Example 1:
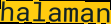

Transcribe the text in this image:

halaman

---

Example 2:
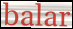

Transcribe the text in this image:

balar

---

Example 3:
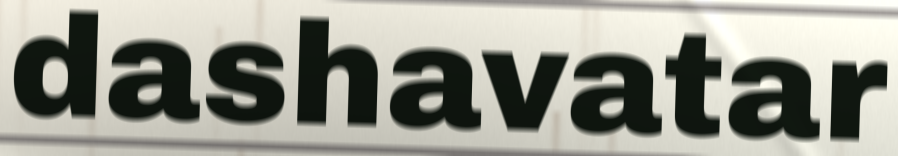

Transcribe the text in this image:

dashavatar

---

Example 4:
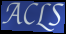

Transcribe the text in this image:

ACLS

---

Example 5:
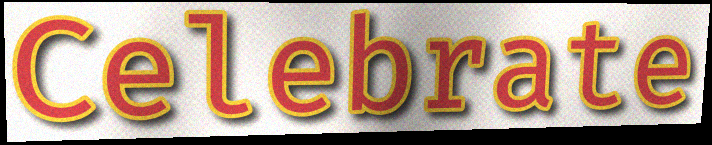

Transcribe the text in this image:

Celebrate